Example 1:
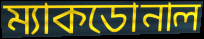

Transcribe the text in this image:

ম্যাকডোনাল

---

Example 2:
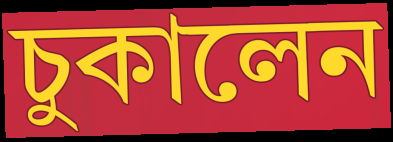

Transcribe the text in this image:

চুকালেন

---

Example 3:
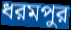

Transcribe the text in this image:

ধরমপুর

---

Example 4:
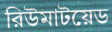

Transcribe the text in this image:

রিউমাটয়েড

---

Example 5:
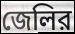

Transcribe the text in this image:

জেলির